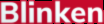
Blinken